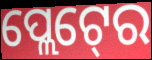
ପ୍ଲେଟ୍‍ରେ